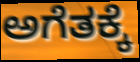
ಅಗೆತಕ್ಕೆ